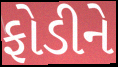
ફોડીને